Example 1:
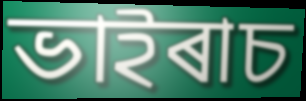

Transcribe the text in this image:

ভাইৰাচ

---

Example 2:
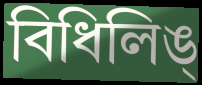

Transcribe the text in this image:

বিধিলিঙ্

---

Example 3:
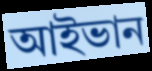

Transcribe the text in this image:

আইভান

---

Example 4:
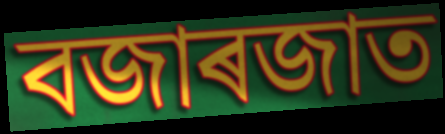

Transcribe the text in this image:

বজাৰজাত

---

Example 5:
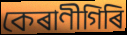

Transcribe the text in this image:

কেৰাণীগিৰি